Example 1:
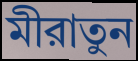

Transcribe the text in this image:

মীরাতুন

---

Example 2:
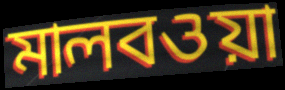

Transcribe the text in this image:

মালবওয়া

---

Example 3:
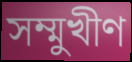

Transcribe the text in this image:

সম্মুখীণ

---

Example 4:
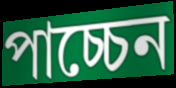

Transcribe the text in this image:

পাচ্চেন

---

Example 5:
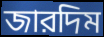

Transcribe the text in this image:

জারদিম